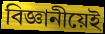
বিজ্ঞানীয়েই